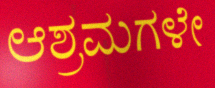
ಆಶ್ರಮಗಳೇ